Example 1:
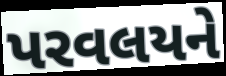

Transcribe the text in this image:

પરવલયને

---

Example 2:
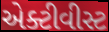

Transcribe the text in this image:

એક્ટીવીસ્ટ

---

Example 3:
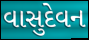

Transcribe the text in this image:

વાસુદેવન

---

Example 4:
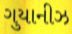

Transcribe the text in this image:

ગુયાનીઝ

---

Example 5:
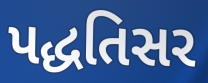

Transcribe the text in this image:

પદ્ધતિસર